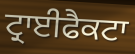
ਟ੍ਰਾਈਫੈਕਟਾ